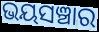
ଭୟସଞ୍ଚାର